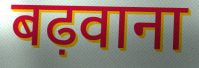
बढ़वाना